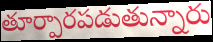
తూర్పారపడుతున్నారు